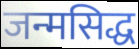
जन्‍मसिद्ध